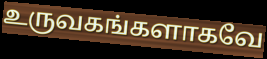
உருவகங்களாகவே